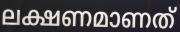
ലക്ഷണമാണത്